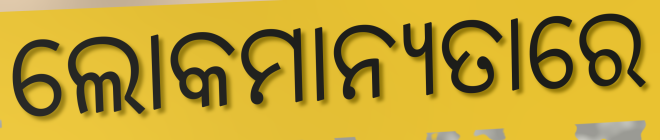
ଲୋକମାନ୍ୟତାରେ